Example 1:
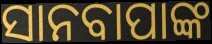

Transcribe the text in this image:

ସାନବାପାଙ୍କ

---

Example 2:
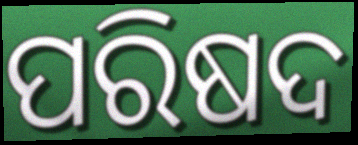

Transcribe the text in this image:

ପରିଷଦ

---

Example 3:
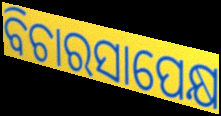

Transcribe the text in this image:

ବିଚାରସାପେକ୍ଷ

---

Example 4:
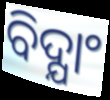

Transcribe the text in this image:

ବିଦ୍ଯାଂ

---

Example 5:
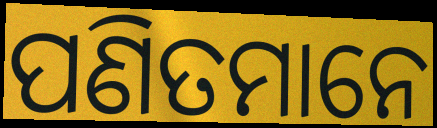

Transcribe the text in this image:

ପଣିତମାନେ